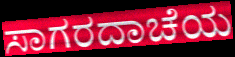
ಸಾಗರದಾಚೆಯ